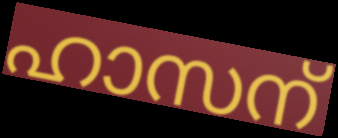
ഹാസന്